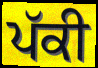
ਪੱਕੀ